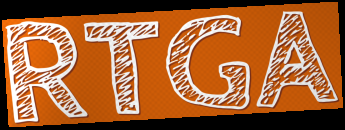
RTGA